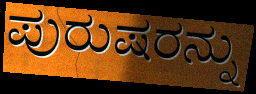
ಪುರುಷರನ್ನು